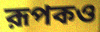
রূপকও